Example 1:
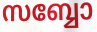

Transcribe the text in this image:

സബ്ബോ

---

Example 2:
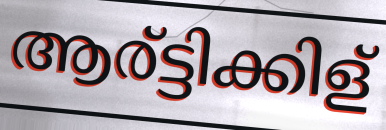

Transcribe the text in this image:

ആര്ട്ടിക്കിള്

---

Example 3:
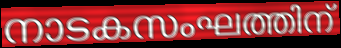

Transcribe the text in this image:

നാടകസംഘത്തിന്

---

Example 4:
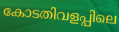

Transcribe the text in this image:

കോടതിവളപ്പിലെ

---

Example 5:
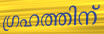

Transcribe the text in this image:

ഗ്രഹത്തിന്